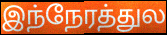
இந்நேரத்துல